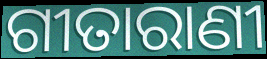
ଗୀତାରାଣୀ